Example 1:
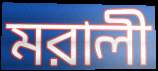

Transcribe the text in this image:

মরালী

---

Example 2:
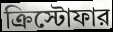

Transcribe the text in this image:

ক্রিস্টোফার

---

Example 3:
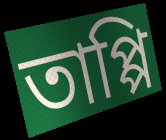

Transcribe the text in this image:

তাপ্পি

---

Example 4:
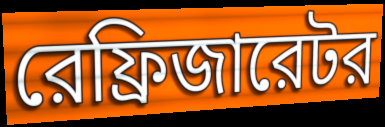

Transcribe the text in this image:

রেফ্রিজারেটর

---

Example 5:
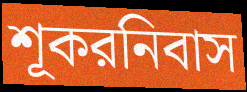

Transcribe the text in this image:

শূকরনিবাস